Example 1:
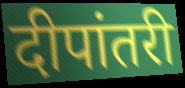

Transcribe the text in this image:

दीपांतरी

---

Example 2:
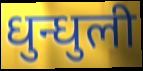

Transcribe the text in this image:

धुन्धुली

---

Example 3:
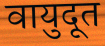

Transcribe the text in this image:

वायुदूत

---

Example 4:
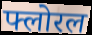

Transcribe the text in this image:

फ्लोरल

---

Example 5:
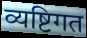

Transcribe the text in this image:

व्यष्टिगत